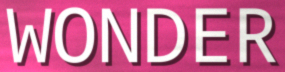
WONDER